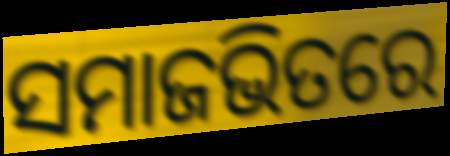
ସମାଜଭିତରେ